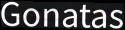
Gonatas